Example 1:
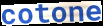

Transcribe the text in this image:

cotone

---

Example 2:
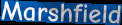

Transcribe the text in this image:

Marshfield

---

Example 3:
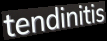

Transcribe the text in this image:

tendinitis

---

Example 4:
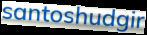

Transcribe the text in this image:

santoshudgir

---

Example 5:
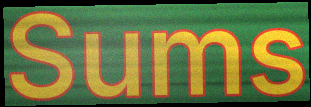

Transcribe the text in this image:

Sums